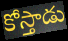
కోస్తాడు